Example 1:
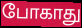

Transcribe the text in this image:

போகாது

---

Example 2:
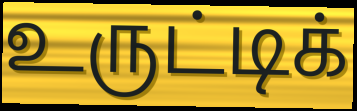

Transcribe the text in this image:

உருட்டிக்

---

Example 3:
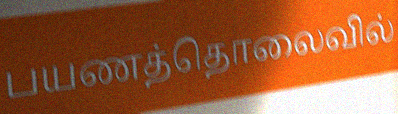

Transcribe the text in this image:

பயணத்தொலைவில்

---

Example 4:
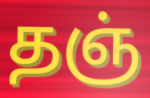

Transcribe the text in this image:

தஞ்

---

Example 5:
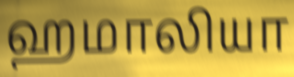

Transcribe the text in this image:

ஹமாலியா